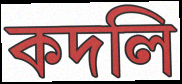
কদলি